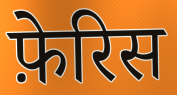
फ़ेरिस